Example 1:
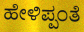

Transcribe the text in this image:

ಹೇಳಿಪ್ಪಂತೆ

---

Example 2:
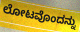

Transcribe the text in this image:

ಲೋಟವೊಂದನ್ನು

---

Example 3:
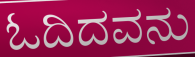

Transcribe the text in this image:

ಓದಿದವನು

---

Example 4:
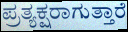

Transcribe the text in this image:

ಪ್ರತ್ಯಕ್ಷರಾಗುತ್ತಾರೆ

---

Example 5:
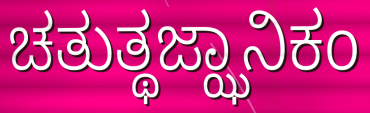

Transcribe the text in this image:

ಚತುತ್ಥಜ್ಝಾನಿಕಂ